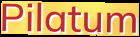
Pilatum